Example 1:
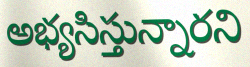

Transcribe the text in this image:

అభ్యసిస్తున్నారని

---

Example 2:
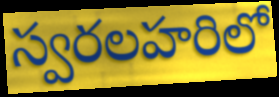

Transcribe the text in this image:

స్వరలహరిలో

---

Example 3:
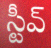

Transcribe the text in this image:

స్టీవ్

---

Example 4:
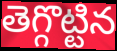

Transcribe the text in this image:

తెగ్గొట్టిన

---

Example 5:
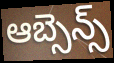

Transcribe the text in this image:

ఆబ్సెన్స్